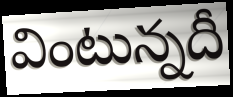
వింటున్నదీ